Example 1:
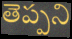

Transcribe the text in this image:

తెప్పని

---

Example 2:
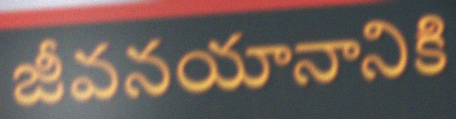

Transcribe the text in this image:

జీవనయానానికి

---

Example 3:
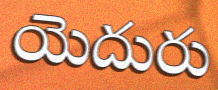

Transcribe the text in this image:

యెదురు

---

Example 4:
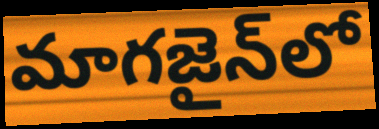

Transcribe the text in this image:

మాగజైన్‌లో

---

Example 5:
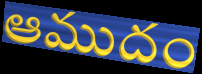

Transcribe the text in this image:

ఆముదం